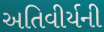
અતિવીર્યની